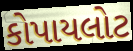
કોપાયલોટ